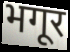
भगूर